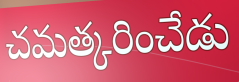
చమత్కరించేడు